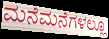
ಮನೆಮನೆಗಳಲ್ಲೂ